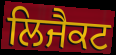
ਲਿਜੈਕਟ